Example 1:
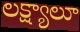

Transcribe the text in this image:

లక్ష్యాలూ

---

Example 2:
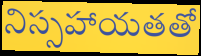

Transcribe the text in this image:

నిస్సహాయతతో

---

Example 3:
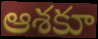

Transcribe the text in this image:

ఆశకూ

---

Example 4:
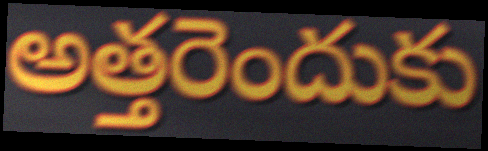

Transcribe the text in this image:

అత్తరెందుకు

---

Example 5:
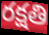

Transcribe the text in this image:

రక్షతి